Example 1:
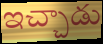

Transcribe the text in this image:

ఇచ్చాడు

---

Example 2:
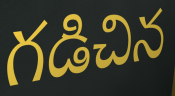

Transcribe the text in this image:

గడిచిన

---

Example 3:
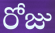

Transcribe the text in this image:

రోజు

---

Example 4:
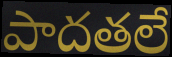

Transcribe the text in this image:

పాదతలే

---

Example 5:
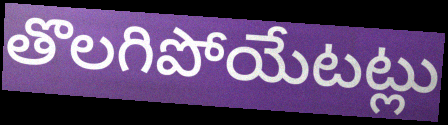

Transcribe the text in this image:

తొలగిపోయేటట్లు